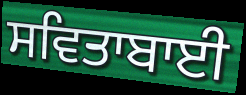
ਸਵਿਤਾਬਾਈ